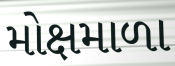
મોક્ષમાળા